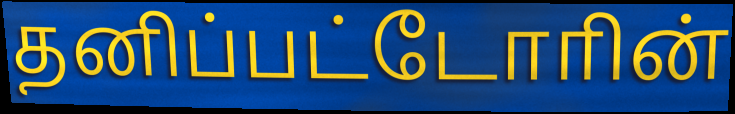
தனிப்பட்டோரின்